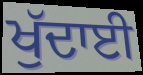
ਖੁੱਦਾਈ